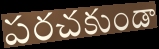
పరచకుండా